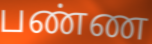
பண்ண